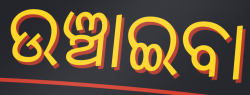
ଉଞ୍ଚାଇବା